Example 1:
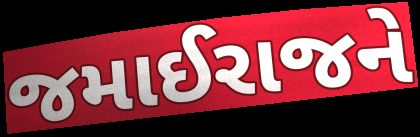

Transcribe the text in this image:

જમાઈરાજને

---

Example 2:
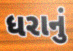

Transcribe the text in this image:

ધરાનું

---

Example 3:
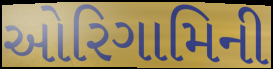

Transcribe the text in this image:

ઓરિગામિની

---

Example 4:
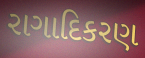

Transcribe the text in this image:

રાગાદિકરણ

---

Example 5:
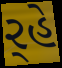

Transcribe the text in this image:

ર્‍હે